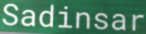
Sadinsar